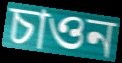
চাওন